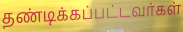
தண்டிக்கப்பட்டவர்கள்